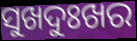
ସୁଖଦୁଃଖର